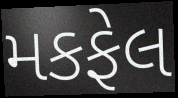
મકફેલ